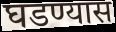
घडण्यास